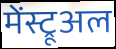
मेंस्ट्रूअल